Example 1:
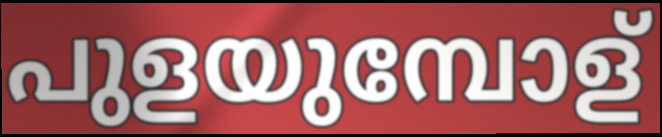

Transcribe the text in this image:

പുളയുമ്പോള്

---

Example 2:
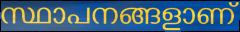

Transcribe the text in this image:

സ്ഥാപനങ്ങളാണ്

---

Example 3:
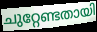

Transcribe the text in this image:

ചുറ്റേണ്ടതായി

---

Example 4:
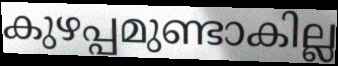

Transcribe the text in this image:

കുഴപ്പമുണ്ടാകില്ല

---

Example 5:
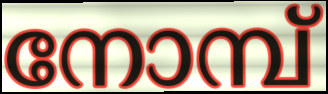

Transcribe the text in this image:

നോമ്പ്